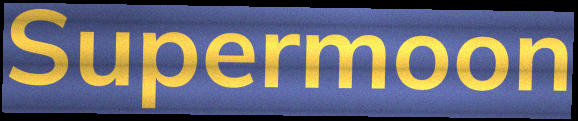
Supermoon